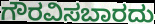
ಗೌರವಿಸಬಾರದು